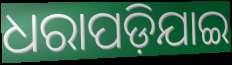
ଧରାପଡ଼ିଯାଇ